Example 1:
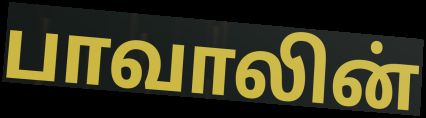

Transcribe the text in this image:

பாவாலின்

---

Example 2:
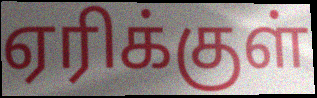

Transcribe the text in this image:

ஏரிக்குள்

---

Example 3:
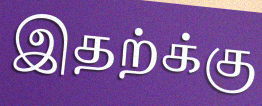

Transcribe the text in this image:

இதற்க்கு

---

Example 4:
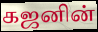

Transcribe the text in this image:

கஜனின்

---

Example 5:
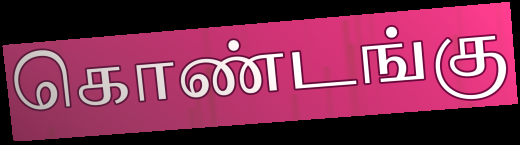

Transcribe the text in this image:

கொண்டங்கு